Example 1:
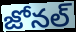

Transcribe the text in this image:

జోనల్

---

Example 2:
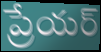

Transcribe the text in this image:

ప్రేయర్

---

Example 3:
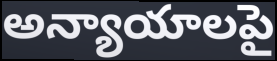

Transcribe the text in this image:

అన్యాయాలపై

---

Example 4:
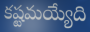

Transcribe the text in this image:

కష్టమయ్యేది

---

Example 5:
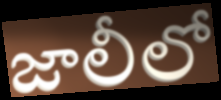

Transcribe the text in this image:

జాలీలో